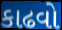
કાઢવો